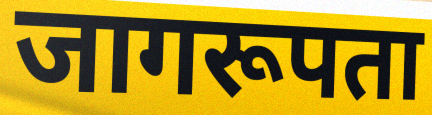
जागरूपता